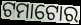
ଟମାଟୋର